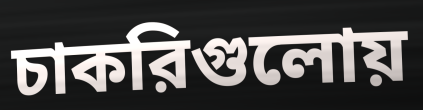
চাকরিগুলোয়